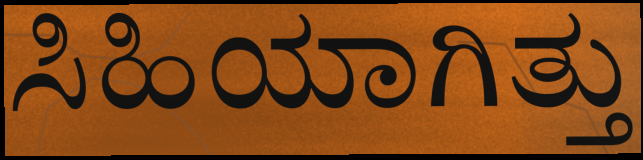
ಸಿಹಿಯಾಗಿತ್ತು